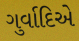
ગુર્વાદિએ